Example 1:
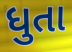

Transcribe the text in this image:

ધુતા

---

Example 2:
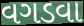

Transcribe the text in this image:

વગડવા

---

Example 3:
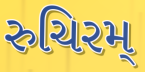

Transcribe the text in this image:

રુચિરમ્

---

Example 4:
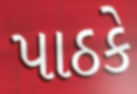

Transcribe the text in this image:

પાઠકે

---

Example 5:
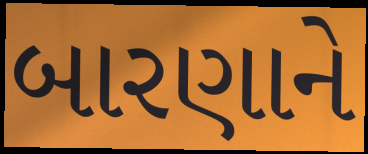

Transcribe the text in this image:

બારણાને